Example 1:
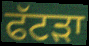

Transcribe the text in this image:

ਫੱਟੜਾ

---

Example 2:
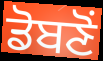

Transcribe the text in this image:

ਡੋਬਣੋਂ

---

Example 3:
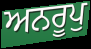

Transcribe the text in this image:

ਅਨਰੂਪੁ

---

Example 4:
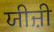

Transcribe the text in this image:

ਯੀਜ਼ੀ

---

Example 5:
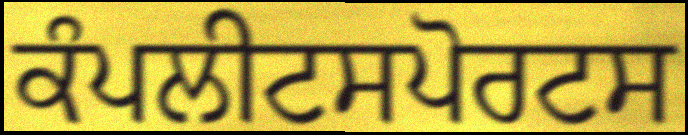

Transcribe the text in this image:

ਕੰਪਲੀਟਸਪੋਰਟਸ